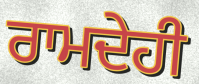
ਰਾਮਦੇਹੀ